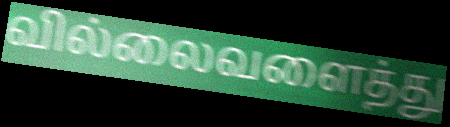
வில்லைவளைத்து